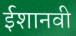
ईशानवी